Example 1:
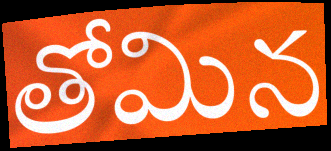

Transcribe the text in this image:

తోమిన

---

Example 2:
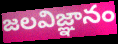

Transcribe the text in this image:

జలవిజ్ఞానం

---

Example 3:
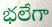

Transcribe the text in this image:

భలేగా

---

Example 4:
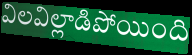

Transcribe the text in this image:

విలవిల్లాడిపోయింది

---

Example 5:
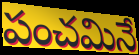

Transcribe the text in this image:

పంచమినే